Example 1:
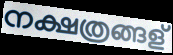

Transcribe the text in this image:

നക്ഷത്രങ്ങള്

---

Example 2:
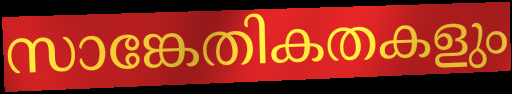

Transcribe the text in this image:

സാങ്കേതികതകളും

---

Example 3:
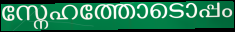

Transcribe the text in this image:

സ്നേഹത്തോടൊപ്പം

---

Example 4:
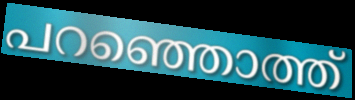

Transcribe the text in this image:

പറഞ്ഞൊത്ത്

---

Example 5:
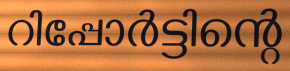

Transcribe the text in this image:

റിപ്പോർട്ടിന്റെ